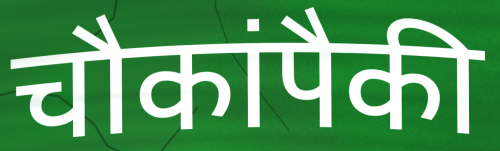
चौकांपैकी